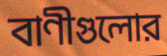
বাণীগুলোর